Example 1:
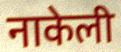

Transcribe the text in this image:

नाकेली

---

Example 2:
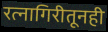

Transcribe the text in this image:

रत्नागिरीतूनही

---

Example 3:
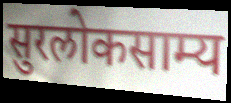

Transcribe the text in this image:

सुरलोकसाम्य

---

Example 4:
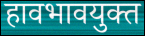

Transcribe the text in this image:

हावभावयुक्त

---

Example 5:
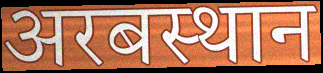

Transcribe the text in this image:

अरबस्थान